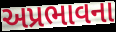
અપ્રભાવના